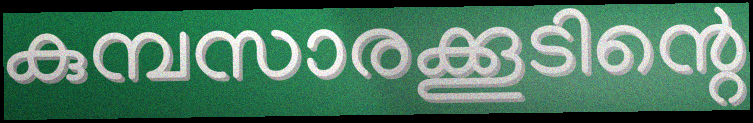
കുമ്പസാരക്കൂടിന്റെ